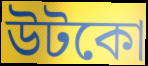
উটকো